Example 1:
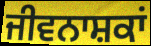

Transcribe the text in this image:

ਜੀਵਨਾਸ਼ਕਾਂ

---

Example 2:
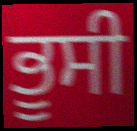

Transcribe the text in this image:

ਭੂਸੀ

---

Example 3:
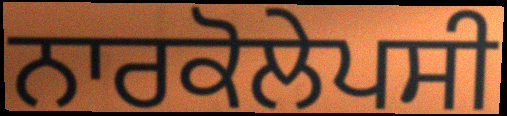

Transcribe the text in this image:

ਨਾਰਕੋਲੇਪਸੀ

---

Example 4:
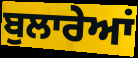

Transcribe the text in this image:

ਬੁਲਾਰੇਆਂ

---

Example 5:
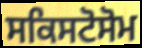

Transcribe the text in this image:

ਸਕਿਸਟੋਸੋਮ